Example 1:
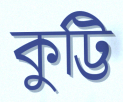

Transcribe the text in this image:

কুট্টি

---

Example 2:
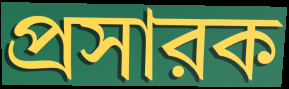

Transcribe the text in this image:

প্রসারক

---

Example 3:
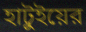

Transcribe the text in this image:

হাটুইয়ের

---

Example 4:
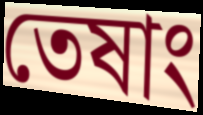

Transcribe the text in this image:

তেষাং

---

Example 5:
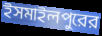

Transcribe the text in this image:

ইসমাইলপুরের